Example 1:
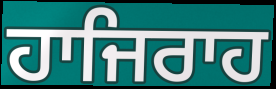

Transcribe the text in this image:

ਹਾਜਿਰਾਹ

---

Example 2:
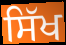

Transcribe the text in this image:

ਸਿੱਖ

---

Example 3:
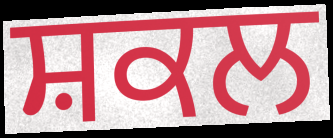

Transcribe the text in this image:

ਸ਼ਕਲ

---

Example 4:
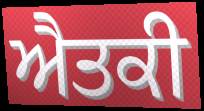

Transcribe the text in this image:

ਐਤਕੀ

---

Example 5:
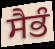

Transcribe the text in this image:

ਸੈਭੰ